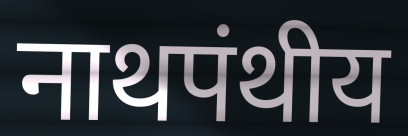
नाथपंथीय